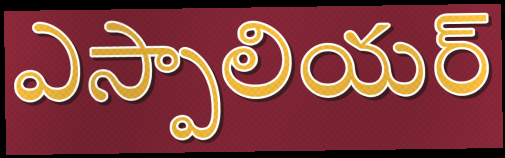
ఎస్పాలియర్